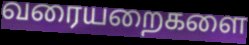
வரையறைகளை